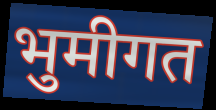
भुमीगत